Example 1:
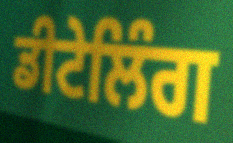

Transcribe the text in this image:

ਡੀਟੇਲਿੰਗ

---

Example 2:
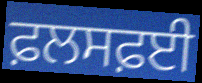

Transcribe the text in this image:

ਫ਼ਲਸਫ਼ਈ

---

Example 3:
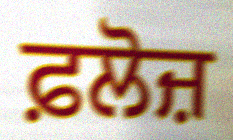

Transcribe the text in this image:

ਫ਼ਲੋਜ਼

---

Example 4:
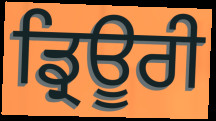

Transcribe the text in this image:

ਡ੍ਰਿਊਰੀ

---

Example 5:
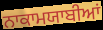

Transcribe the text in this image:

ਨਾਕਾਮਯਾਬੀਆਂ